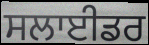
ਸਲਾਈਡਰ